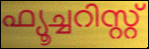
ഫ്യൂച്ചറിസ്റ്റ്